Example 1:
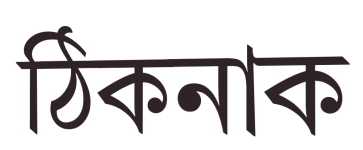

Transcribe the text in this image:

ঠিকনাক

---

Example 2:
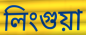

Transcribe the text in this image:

লিংগুয়া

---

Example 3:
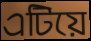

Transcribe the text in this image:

এটিয়ে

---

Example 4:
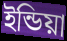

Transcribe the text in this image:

ইন্ডিয়া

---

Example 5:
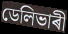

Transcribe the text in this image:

ডেলিভাৰী